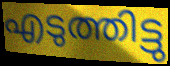
എടുത്തിട്ടു